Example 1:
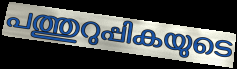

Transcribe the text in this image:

പത്തുറുപ്പികയുടെ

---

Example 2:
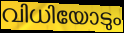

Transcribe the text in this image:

വിധിയോടും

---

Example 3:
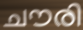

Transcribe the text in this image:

ചൗരി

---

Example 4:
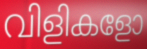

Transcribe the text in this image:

വിളികളോ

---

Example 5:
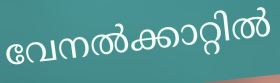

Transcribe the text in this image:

വേനൽക്കാറ്റിൽ